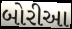
બોરીઆ